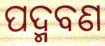
ପଦ୍ମବଣ